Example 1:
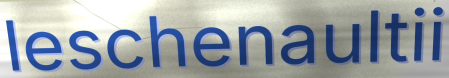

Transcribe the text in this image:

leschenaultii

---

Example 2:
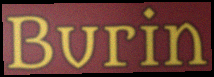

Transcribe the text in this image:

Burin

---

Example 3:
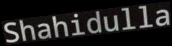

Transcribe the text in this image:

Shahidulla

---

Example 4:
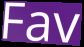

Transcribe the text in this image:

Fav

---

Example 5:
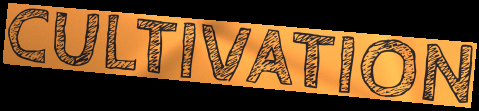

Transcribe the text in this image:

CULTIVATION